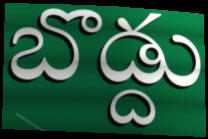
బొడ్దు